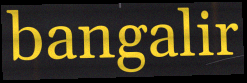
bangalir